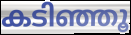
കടിഞ്ഞൂ